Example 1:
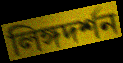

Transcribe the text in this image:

লিঙ্গদর্শন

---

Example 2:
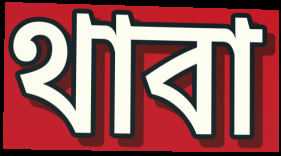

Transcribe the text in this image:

থাবা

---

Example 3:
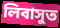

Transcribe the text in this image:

লিবাসুত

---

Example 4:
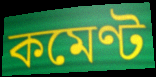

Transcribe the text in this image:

কমেণ্ট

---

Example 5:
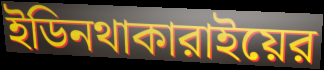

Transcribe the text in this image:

ইডিনথাকারাইয়ের